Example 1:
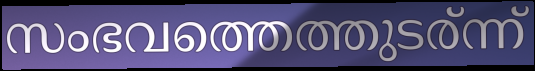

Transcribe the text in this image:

സംഭവത്തെത്തുടര്ന്ന്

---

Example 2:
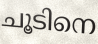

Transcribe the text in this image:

ചൂടിനെ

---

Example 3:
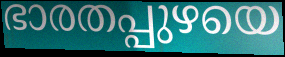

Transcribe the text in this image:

ഭാരതപ്പുഴയെ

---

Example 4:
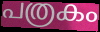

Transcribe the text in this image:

പത്രകം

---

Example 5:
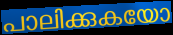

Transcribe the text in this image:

പാലിക്കുകയോ